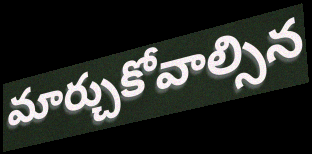
మార్చుకోవాల్సిన